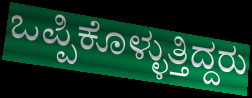
ಒಪ್ಪಿಕೊಳ್ಳುತ್ತಿದ್ದರು